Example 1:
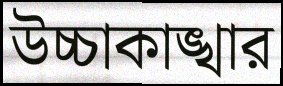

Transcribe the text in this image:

উচ্চাকাঙ্খার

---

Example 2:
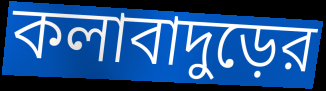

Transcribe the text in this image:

কলাবাদুড়ের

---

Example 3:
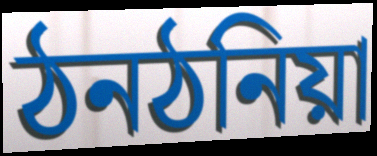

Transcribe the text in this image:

ঠনঠনিয়া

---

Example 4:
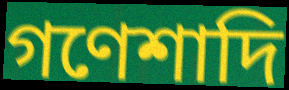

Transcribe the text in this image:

গণেশাদি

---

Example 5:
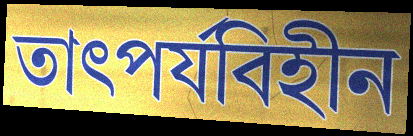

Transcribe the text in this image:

তাৎপর্যবিহীন